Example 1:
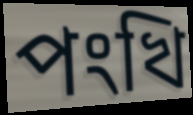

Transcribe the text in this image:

পংখি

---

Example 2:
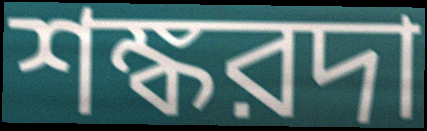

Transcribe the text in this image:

শঙ্করদা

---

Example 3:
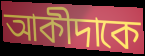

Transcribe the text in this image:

আকীদাকে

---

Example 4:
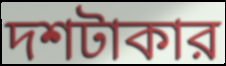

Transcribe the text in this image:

দশটাকার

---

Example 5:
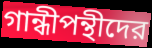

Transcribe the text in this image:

গান্ধীপন্থীদের